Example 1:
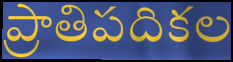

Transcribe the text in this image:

ప్రాతిపదికల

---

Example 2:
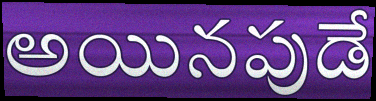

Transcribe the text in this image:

అయినపుడే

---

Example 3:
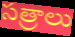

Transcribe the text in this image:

సత్రాలు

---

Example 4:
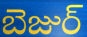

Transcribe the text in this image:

బెజుర్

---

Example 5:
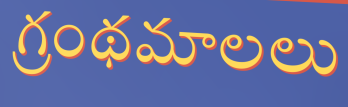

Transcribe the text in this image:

గ్రంథమాలలు